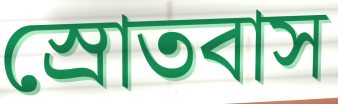
স্রোতবাস